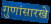
गुणांसारखे